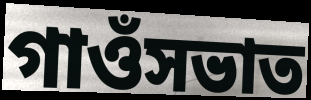
গাওঁসভাত